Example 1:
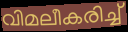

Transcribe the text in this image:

വിമലീകരിച്ച്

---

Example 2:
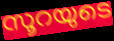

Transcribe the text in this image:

സൂറയുടെ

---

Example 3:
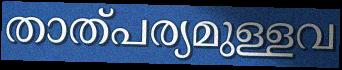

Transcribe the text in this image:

താത്പര്യമുള്ളവ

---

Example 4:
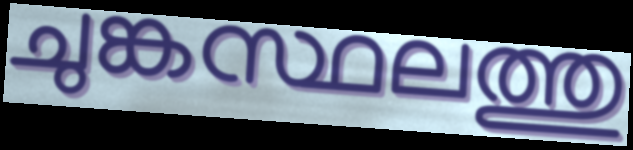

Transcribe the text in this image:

ചുങ്കസ്ഥലത്തു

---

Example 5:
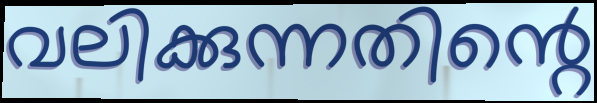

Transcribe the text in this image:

വലിക്കുന്നതിന്റെ